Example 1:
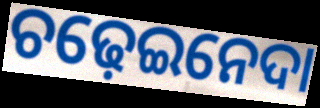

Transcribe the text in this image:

ଚଢ଼େଇନେଦା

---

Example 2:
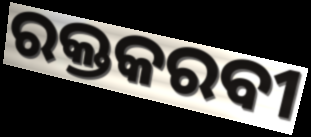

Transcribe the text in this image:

ରକ୍ତକରବୀ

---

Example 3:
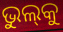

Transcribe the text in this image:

ଭୁଲ୍‍କୁ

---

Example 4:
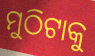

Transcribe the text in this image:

ମୁଠିଟାକୁ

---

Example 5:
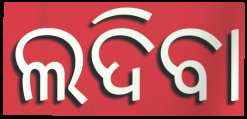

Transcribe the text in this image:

ଲଦିବା